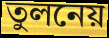
তুলনেয়